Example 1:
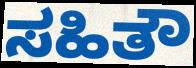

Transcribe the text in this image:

ಸಹಿತೌ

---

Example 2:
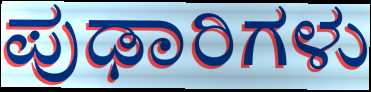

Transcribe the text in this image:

ಪುಢಾರಿಗಳು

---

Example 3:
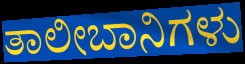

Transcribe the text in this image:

ತಾಲೀಬಾನಿಗಳು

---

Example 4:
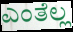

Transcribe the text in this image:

ಎಂತೆಲ್ಲ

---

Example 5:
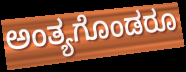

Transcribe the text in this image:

ಅಂತ್ಯಗೊಂಡರೂ